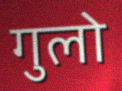
गुलो